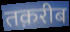
तक़रीब